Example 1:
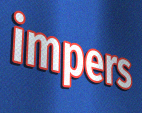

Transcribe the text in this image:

impers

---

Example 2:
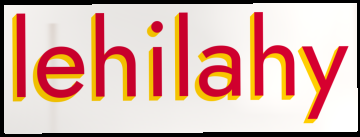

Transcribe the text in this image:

lehilahy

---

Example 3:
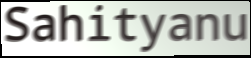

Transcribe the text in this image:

Sahityanu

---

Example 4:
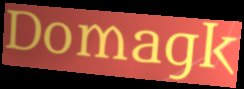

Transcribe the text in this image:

Domagk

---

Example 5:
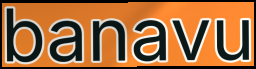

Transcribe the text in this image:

banavu